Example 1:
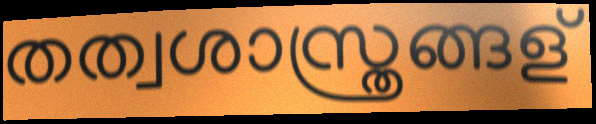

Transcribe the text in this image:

തത്വശാസ്ത്രങ്ങള്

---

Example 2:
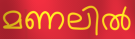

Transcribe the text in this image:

മണലിൽ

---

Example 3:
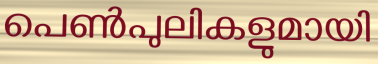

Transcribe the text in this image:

പെൺപുലികളുമായി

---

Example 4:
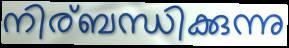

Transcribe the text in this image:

നിര്ബന്ധിക്കുന്നു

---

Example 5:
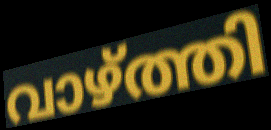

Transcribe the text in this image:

വാഴ്ത്തി